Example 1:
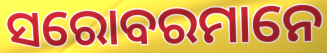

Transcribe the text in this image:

ସରୋବରମାନେ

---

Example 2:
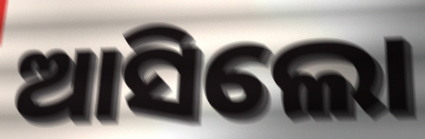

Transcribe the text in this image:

ଆସିଲୋ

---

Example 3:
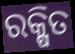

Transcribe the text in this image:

ରକ୍ଷିତ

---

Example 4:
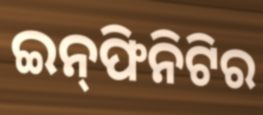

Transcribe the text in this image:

ଇନ୍‌ଫିନିଟିର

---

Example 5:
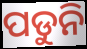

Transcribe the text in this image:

ପଡୁନି